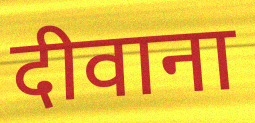
दीवाना